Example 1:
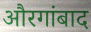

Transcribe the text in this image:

औरगांबाद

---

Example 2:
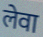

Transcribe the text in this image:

लेवा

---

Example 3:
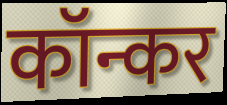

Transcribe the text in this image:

कॉन्कर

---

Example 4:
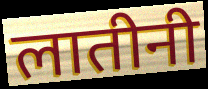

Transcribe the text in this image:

लातीनी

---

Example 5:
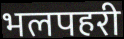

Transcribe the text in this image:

भलपहरी